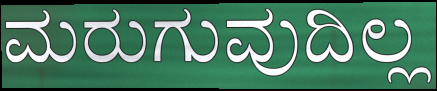
ಮರುಗುವುದಿಲ್ಲ